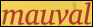
mauval